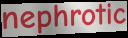
nephrotic